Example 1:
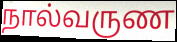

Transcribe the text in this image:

நால்வருண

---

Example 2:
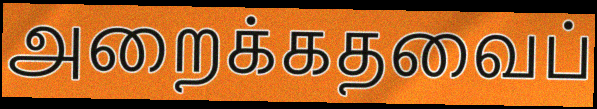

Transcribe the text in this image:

அறைக்கதவைப்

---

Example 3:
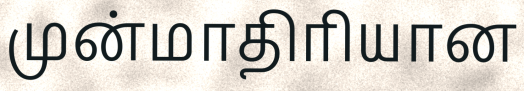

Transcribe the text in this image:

முன்மாதிரியான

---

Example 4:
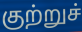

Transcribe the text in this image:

குற்றுச்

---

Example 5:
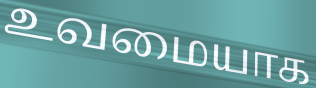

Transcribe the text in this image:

உவமையாக